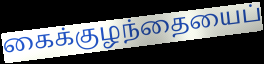
கைக்குழந்தையைப்